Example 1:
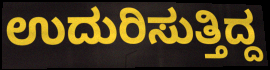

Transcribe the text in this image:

ಉದುರಿಸುತ್ತಿದ್ದ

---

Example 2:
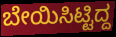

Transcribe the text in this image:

ಬೇಯಿಸಿಟ್ಟಿದ್ದ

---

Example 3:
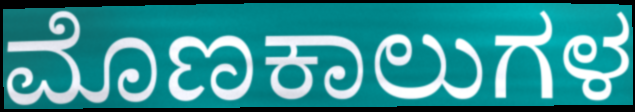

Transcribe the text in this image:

ಮೊಣಕಾಲುಗಳ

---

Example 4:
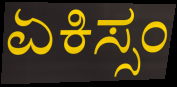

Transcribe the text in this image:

ಏಕಿಸ್ಸಂ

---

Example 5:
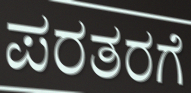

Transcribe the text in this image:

ಪರತರಗೆ